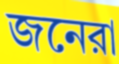
জনেরা